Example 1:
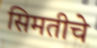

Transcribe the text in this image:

सिमतीचे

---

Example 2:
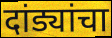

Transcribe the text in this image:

दांड्यांचा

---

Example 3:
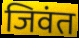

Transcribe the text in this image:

जिवंत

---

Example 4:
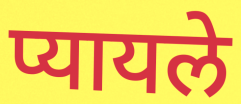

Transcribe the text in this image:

प्यायले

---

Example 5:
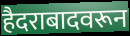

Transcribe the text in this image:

हैदराबादवरून